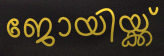
ജോയിയ്ക്ക്